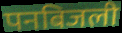
पनबिजली